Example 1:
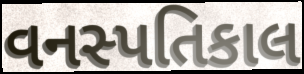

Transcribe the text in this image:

વનસ્પતિકાલ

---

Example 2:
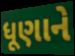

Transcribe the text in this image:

ધૂણાને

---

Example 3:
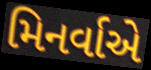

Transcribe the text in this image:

મિનર્વાએ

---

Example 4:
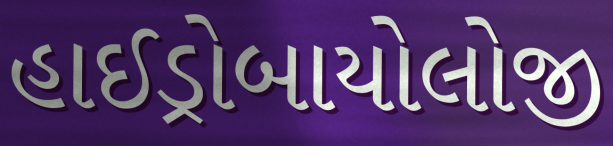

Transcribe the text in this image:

હાઈડ્રોબાયોલોજી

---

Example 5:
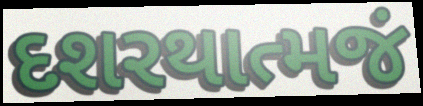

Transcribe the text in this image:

દશરથાત્મજં